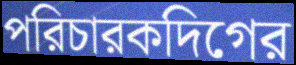
পরিচারকদিগের